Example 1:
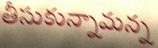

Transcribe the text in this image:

తీసుకున్నామన్న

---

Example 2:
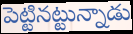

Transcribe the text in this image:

పెట్టినట్టున్నాడు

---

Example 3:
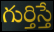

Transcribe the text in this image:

గుర్తిస్తే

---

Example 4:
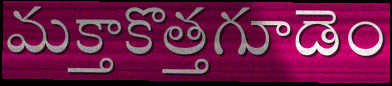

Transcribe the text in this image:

మక్తాకొత్తగూడెం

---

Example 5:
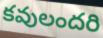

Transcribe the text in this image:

కవులందరి